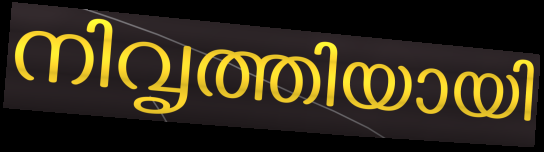
നിവൃത്തിയായി